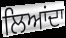
ਲਿਆਂਦਾ